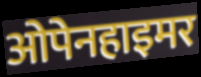
ओपेनहाइमर